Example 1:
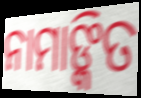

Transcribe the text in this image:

ନାମାଙ୍କିତ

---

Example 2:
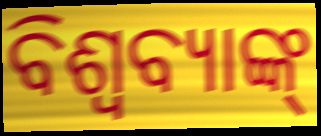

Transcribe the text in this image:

ବିଶ୍ବବ୍ୟାଙ୍କ୍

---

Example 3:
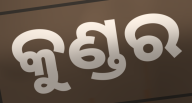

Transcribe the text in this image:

କୁଣ୍ଡର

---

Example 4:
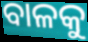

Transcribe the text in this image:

ବାଳକୁ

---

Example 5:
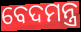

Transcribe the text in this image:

ବେଦମନ୍ତ୍ର